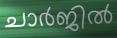
ചാർജിൽ